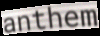
anthem